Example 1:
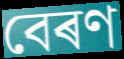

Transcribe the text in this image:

বেৰণ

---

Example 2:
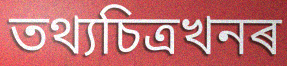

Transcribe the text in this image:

তথ্যচিত্ৰখনৰ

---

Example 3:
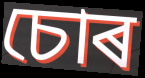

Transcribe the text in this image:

চোৰ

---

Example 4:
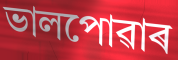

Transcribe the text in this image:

ভালপোৱাৰ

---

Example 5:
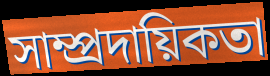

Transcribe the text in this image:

সাম্প্ৰদায়িকতা